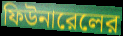
ফিউনারেলের